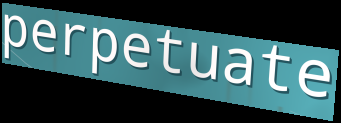
perpetuate